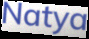
Natya